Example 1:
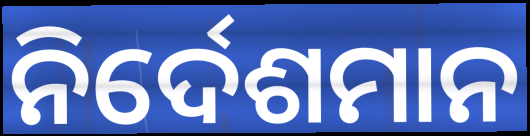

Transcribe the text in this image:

ନିର୍ଦେଶମାନ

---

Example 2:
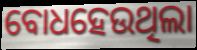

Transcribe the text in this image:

ବୋଧହେଉଥିଲା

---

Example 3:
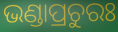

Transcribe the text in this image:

ଭଣ୍ଡାପ୍ରଚୁରଃ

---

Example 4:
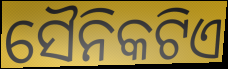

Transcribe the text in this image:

ସୈନିକଟିଏ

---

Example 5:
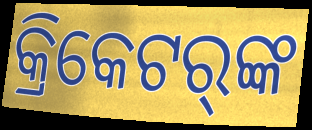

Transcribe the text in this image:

କ୍ରିକେଟର୍‌ଙ୍କ